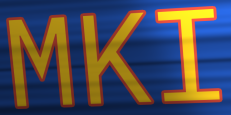
MKI